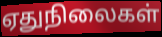
ஏதுநிலைகள்